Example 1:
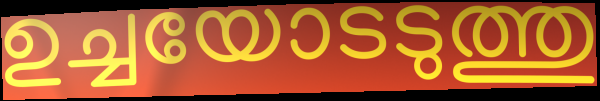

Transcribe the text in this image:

ഉച്ചയോടടുത്തു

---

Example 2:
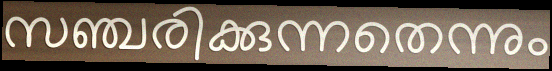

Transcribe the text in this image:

സഞ്ചരിക്കുന്നതെന്നും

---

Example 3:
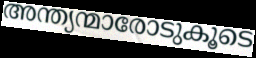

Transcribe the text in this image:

അന്ത്യന്മാരോടുകൂടെ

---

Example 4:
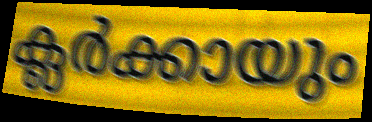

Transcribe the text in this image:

ക്ലർക്കായും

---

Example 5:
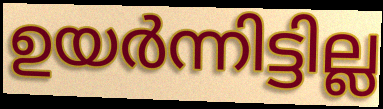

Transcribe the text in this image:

ഉയർന്നിട്ടില്ല